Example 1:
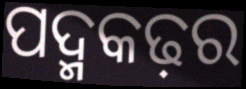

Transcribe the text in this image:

ପଦ୍ମକଢ଼ର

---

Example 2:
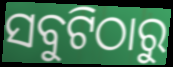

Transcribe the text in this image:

ସବୁଟିଠାରୁ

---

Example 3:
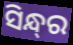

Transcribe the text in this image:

ସିନ୍ଧ୍‌ର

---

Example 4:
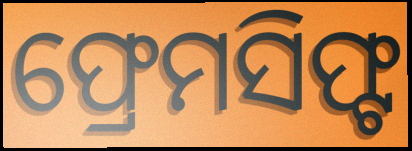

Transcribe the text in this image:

ଫ୍ରେମସିଫ୍ଟ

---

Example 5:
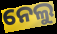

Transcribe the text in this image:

ନେଲୁ